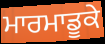
ਮਾਰਮਾਡੂਕੇ